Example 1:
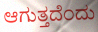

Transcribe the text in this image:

ಆಗುತ್ತದೆಂದು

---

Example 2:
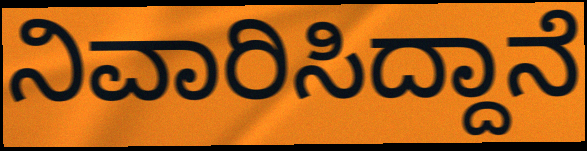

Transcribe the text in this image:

ನಿವಾರಿಸಿದ್ದಾನೆ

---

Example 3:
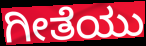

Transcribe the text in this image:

ಗೀತೆಯು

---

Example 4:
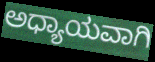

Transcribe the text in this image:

ಅಧ್ಯಾಯವಾಗಿ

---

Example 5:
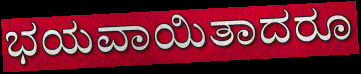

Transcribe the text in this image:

ಭಯವಾಯಿತಾದರೂ